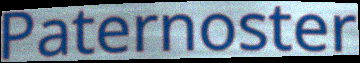
Paternoster